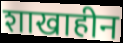
शाखाहीन